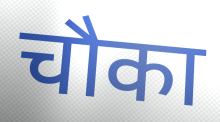
चौका